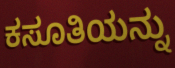
ಕಸೂತಿಯನ್ನು